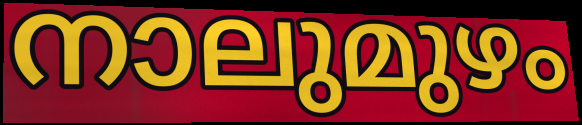
നാലുമുഴം